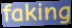
faking